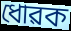
ধোৱক